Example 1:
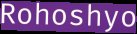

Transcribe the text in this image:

Rohoshyo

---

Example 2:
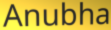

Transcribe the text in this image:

Anubha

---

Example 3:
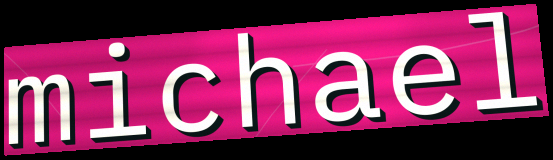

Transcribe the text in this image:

michael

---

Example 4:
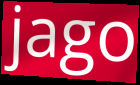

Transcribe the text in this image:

jago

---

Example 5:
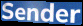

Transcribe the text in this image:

Sender